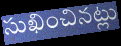
సుఖించినట్లు